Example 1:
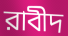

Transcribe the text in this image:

রাবীদ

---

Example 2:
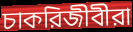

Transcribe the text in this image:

চাকরিজীবীরা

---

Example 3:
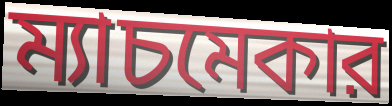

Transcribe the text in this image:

ম্যাচমেকার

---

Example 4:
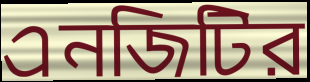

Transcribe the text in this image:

এনজিটির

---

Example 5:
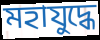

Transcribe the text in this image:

মহাযুদ্ধে